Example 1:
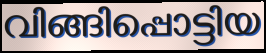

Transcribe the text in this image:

വിങ്ങിപ്പൊട്ടിയ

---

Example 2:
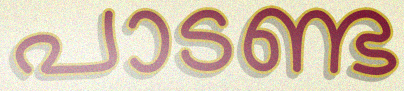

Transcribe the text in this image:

പാടണ്ട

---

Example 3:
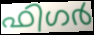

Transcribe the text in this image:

ഫിഗർ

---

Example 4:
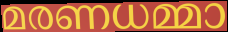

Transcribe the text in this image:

മരണധമ്മാ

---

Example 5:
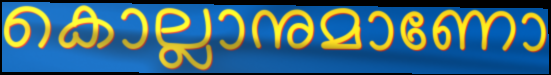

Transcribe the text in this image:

കൊല്ലാനുമാണോ